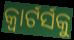
କ୍ୱାର୍ଟର୍ସକୁ